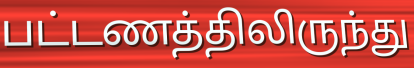
பட்டணத்திலிருந்து